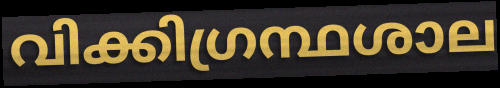
വിക്കിഗ്രന്ഥശാല